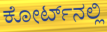
ಕೋರ್ಟ್‌ನಲ್ಲಿ